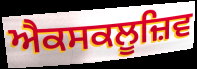
ਐਕਸਕਲੂਜ਼ਿਵ